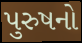
પુરુષનો